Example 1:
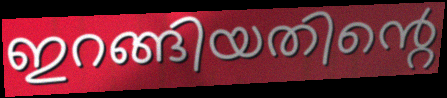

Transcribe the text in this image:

ഇറങ്ങിയതിന്റെ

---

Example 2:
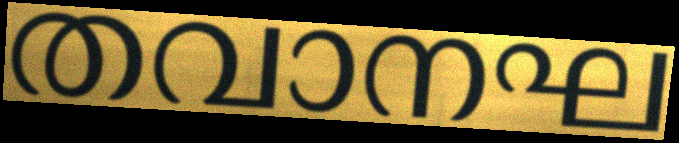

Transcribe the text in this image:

തവാനഘ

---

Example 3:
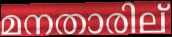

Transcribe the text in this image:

മനതാരില്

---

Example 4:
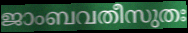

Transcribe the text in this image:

ജാംബവതീസുതഃ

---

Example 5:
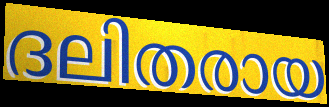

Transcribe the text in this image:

ദലിതരായ